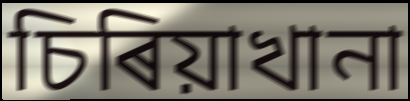
চিৰিয়াখানা